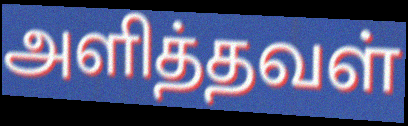
அளித்தவள்